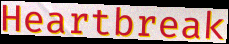
Heartbreak